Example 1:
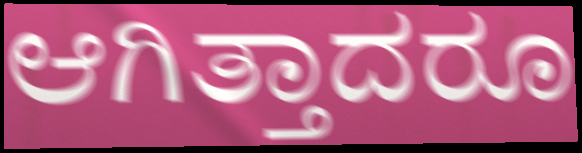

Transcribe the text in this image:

ಆಗಿತ್ತಾದರೂ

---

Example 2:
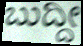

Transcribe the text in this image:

ಬುದ್ದೀ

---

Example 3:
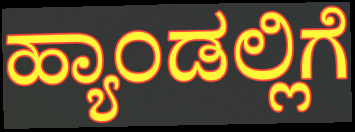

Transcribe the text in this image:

ಹ್ಯಾಂಡಲ್ಲಿಗೆ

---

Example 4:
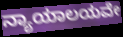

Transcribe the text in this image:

ನ್ಯಾಯಾಲಯವೇ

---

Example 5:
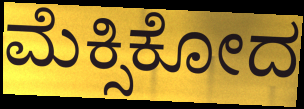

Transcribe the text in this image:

ಮೆಕ್ಸಿಕೋದ